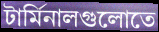
টার্মিনালগুলোতে